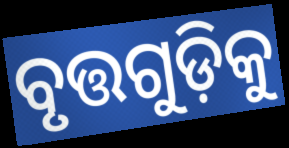
ବୃତ୍ତଗୁଡ଼ିକୁ